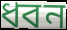
ধবন